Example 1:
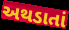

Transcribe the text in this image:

અથડાતાં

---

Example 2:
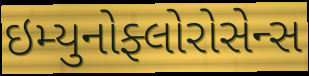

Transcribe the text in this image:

ઇમ્યુનોફ્લોરોસેન્સ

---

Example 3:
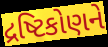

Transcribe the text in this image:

દ્રષ્ટિકોણને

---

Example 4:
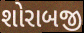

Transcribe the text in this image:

શોરાબજી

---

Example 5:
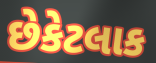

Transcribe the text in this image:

છેકેટલાક